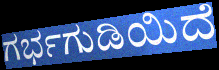
ಗರ್ಭಗುಡಿಯಿದೆ